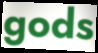
gods